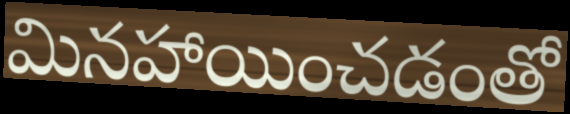
మినహాయించడంతో